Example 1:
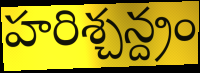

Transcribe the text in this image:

హరిశ్చన్ద్రం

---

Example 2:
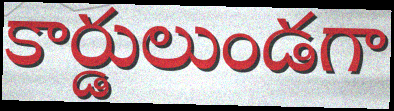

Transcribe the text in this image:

కార్డులుండగా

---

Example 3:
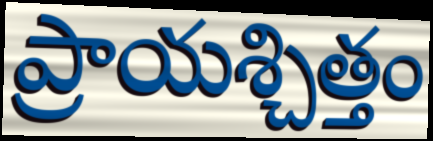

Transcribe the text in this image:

ప్రాయశ్చిత్తం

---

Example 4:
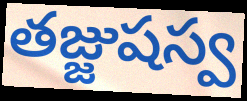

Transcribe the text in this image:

తజ్జుషస్వ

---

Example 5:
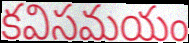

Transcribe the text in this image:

కవిసమయం